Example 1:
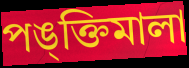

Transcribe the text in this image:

পঙ্‌ক্তিমালা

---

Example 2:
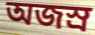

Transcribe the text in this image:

অজস্র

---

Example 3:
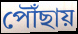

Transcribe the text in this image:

পৌঁছায়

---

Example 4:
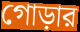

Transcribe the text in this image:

গোড়ার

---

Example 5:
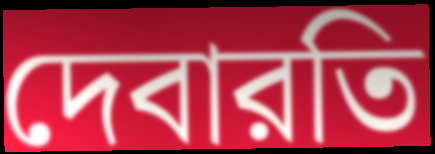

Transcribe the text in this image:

দেবারতি